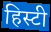
हिस्टी